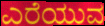
ಎರೆಯುವ